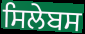
ਸਿਲੇਬਸ